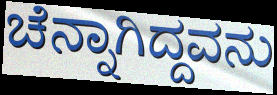
ಚೆನ್ನಾಗಿದ್ದವನು